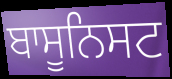
ਬਾਸੂਨਿਸਟ